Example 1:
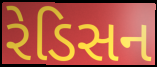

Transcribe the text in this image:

રેડિસન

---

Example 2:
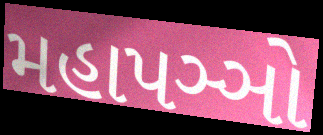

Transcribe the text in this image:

મહાપઞ્ઞો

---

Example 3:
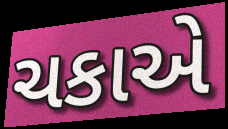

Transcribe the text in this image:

ચકાએ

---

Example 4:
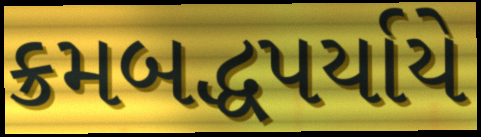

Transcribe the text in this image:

ક્રમબદ્ધપર્યાયે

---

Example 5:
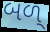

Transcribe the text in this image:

બળ્